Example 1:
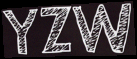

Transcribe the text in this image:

YZW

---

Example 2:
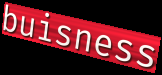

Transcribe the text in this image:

buisness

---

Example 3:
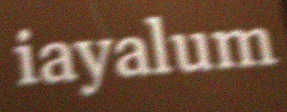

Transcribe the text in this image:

iayalum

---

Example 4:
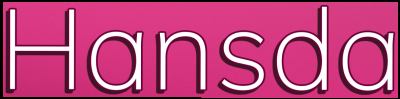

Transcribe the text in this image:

Hansda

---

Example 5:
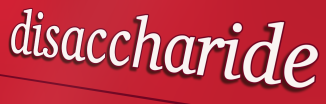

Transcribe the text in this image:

disaccharide